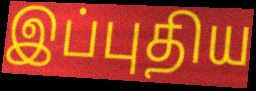
இப்புதிய